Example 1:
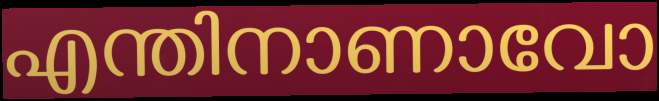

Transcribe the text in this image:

എന്തിനാണാവോ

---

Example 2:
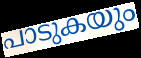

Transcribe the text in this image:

പാടുകയും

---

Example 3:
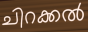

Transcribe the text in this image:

ചിറക്കൽ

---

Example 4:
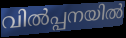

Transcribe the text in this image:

വിൽപ്പനയിൽ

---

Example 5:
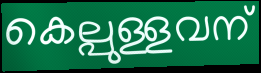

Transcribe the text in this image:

കെല്പുള്ളവന്